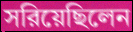
সরিয়েছিলেন